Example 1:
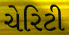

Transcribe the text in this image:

ચેરિટી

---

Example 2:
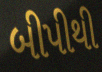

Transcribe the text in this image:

બીપીથી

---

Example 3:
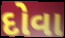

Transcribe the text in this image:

દોવા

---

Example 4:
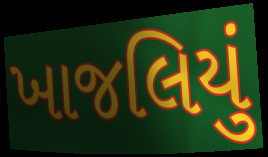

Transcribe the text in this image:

ખાજલિયું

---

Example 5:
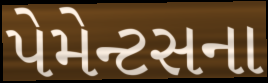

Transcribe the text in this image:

પેમેન્ટસના